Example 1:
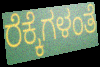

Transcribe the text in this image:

ರೆಕ್ಕೆಗಳಂತೆ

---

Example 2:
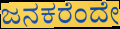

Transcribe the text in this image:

ಜನಕರೆಂದೇ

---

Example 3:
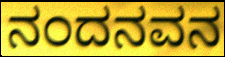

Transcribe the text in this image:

ನಂದನವನ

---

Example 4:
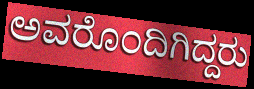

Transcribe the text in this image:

ಅವರೊಂದಿಗಿದ್ದರು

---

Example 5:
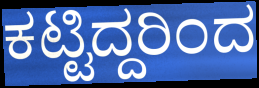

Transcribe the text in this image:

ಕಟ್ಟಿದ್ದರಿಂದ